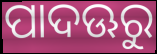
ପାଦଊରୁ